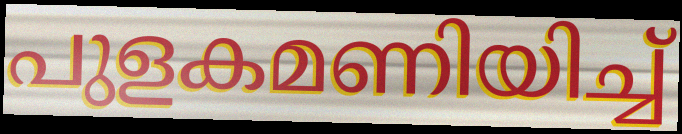
പുളകമണിയിച്ച്